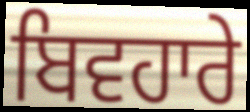
ਬਿਵਹਾਰੇ